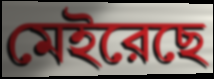
মেইরেছে